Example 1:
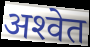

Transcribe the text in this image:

अश्‍वेत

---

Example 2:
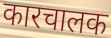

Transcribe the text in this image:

कारचालक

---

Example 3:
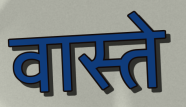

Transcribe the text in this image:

वास्ते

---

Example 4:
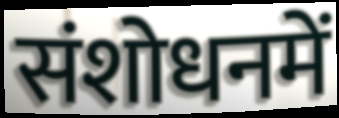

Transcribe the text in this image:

संशोधनमें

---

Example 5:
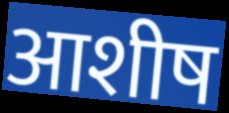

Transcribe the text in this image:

आशीष